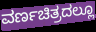
ವರ್ಣಚಿತ್ರದಲ್ಲೂ